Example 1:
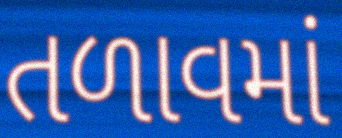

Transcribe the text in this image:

તળાવમાં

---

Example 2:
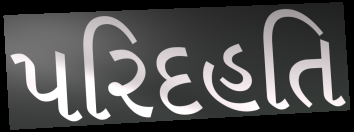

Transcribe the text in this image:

પરિદહતિ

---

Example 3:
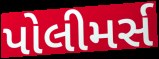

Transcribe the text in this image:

પોલીમર્સ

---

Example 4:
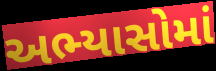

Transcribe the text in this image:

અભ્યાસોમાં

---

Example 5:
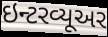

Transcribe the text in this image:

ઇન્ટરવ્યૂઅર